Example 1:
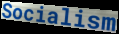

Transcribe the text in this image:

Socialism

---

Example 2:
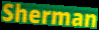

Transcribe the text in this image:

Sherman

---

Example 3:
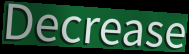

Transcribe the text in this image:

Decrease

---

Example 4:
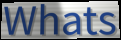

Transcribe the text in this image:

Whats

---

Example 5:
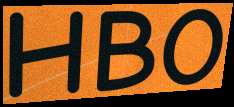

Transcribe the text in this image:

HBO